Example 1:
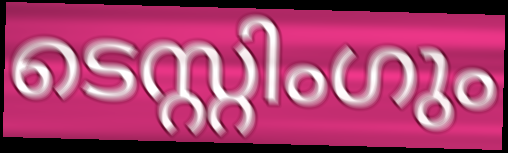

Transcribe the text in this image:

ടെസ്റ്റിംഗും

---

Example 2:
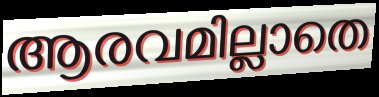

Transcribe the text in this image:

ആരവമില്ലാതെ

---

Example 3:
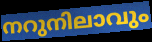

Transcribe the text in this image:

നറുനിലാവും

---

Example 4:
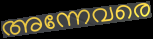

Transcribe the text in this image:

അന്നേവരെ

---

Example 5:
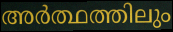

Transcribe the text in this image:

അർത്ഥത്തിലും